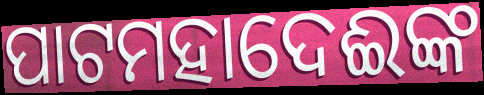
ପାଟମହାଦେଈଙ୍କ